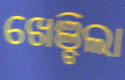
ଖେଞ୍ଚିଲା